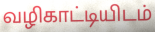
வழிகாட்டியிடம்